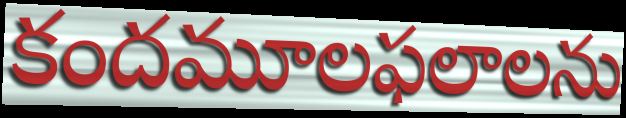
కందమూలఫలాలను